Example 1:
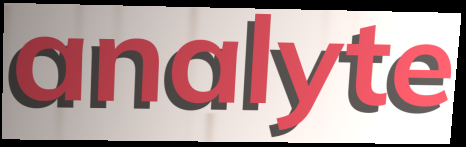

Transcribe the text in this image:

analyte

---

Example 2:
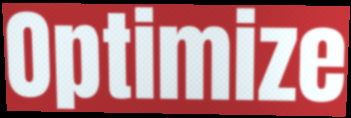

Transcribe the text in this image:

Optimize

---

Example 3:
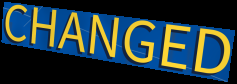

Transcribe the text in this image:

CHANGED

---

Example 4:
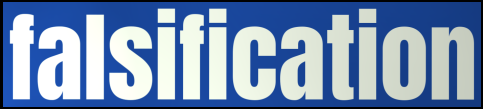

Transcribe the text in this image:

falsification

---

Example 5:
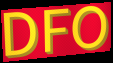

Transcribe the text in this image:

DFO